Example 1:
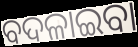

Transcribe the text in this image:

ବଦଳାଇବା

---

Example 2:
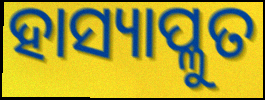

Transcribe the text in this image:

ହାସ୍ୟାପ୍ଳୁତ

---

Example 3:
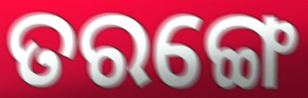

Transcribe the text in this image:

ତରଙ୍ଗେ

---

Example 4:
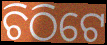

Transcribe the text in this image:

ଚିଠିଟେ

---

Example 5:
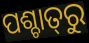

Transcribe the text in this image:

ପଶ୍ଚାତ୍‌ରୁ